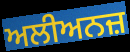
ਅਲੀਅਨਜ਼